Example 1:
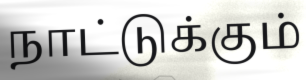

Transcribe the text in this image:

நாட்டுக்கும்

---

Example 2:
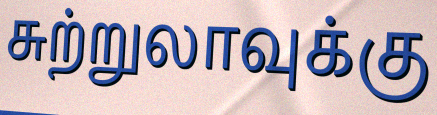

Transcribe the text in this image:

சுற்றுலாவுக்கு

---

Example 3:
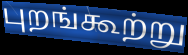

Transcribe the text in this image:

புறங்கூற்று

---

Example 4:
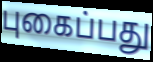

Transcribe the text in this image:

புகைப்பது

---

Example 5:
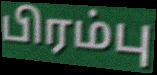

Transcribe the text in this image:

பிரம்பு